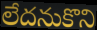
లేదనుకొని